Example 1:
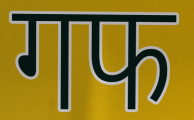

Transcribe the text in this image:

गफ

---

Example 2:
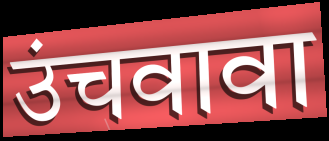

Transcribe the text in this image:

उंचवावा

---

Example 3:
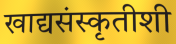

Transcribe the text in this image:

खाद्यसंस्कृतीशी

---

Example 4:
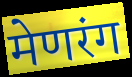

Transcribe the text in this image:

मेणरंग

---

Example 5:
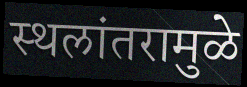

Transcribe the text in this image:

स्थलांतरामुळे